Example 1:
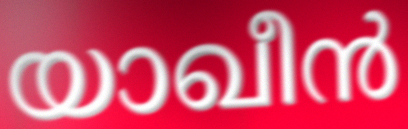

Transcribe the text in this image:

യാഖീൻ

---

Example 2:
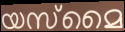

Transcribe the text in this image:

യസ്മൈ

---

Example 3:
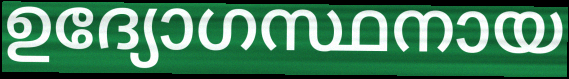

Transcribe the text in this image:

ഉദ്യോഗസ്ഥനായ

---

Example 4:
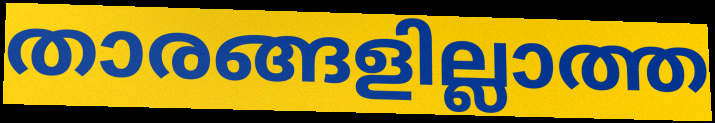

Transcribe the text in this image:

താരങ്ങളില്ലാത്ത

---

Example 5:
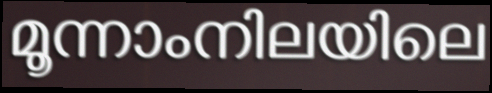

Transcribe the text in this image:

മൂന്നാംനിലയിലെ